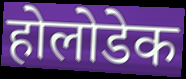
होलोडेक